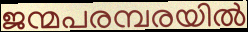
ജന്മപരമ്പരയിൽ